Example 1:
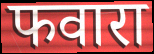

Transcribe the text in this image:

फवारा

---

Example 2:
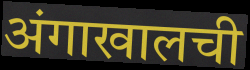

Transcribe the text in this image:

अंगाखालची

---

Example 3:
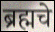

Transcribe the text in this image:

ब्रह्मचे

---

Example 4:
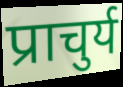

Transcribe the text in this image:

प्राचुर्य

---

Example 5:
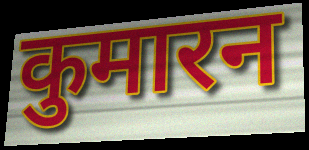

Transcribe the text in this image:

कुमारन